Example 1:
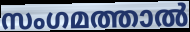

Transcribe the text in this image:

സംഗമത്താൽ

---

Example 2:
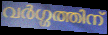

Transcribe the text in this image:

വർഗ്ഗത്തിന്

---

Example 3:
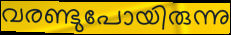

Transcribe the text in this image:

വരണ്ടുപോയിരുന്നു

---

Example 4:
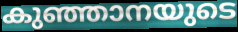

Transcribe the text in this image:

കുഞ്ഞാനയുടെ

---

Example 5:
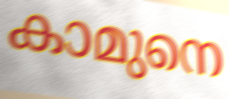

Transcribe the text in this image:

കാമുനെ